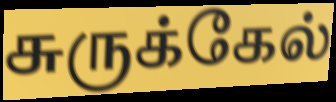
சுருக்கேல்